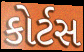
કોર્ટસ